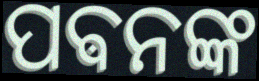
ପଵନଙ୍କ